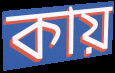
কায়